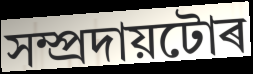
সম্প্ৰদায়টোৰ